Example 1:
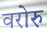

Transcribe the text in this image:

वरोरु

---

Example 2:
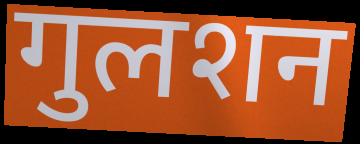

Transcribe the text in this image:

गुलशन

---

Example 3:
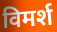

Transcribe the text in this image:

विमर्श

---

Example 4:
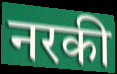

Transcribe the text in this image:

नरकी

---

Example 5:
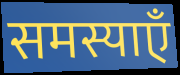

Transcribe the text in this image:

समस्याएँ